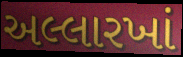
અલ્લારખાં